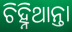
ଚିହ୍ନିଥାନ୍ତା